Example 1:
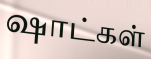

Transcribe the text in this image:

ஷாட்கள்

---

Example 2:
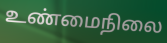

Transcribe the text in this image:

உண்மைநிலை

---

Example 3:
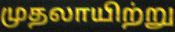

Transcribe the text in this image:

முதலாயிற்று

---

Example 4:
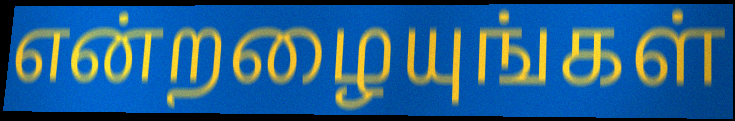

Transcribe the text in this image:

என்றழையுங்கள்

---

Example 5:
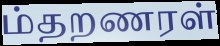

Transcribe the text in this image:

ம்தறணரள்